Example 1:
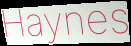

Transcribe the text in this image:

Haynes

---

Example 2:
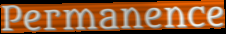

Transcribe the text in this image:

Permanence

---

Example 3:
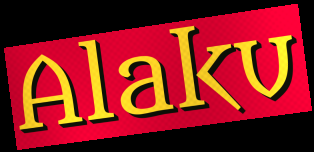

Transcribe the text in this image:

Alaku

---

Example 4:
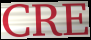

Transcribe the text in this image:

CRE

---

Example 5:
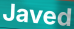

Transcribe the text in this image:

Javed